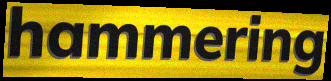
hammering